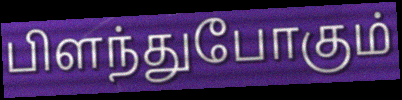
பிளந்துபோகும்